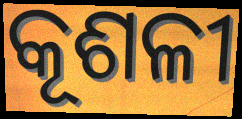
କୂଶଳୀ